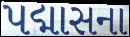
પદ્માસના